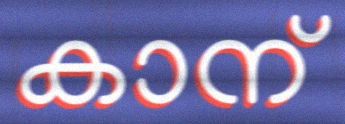
കാന്